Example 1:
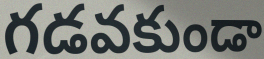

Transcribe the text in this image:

గడవకుండా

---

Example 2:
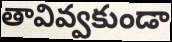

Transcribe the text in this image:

తావివ్వకుండా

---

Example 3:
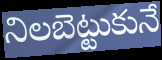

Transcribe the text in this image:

నిలబెట్టుకునే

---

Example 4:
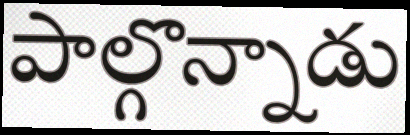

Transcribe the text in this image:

పాల్గొన్నాడు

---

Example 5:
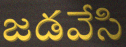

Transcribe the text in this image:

జడవేసి